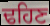
ਢਹਿਣ